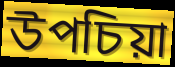
উপচিয়া